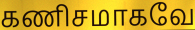
கணிசமாகவே